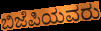
ಬಿಜೆಪಿಯವರು